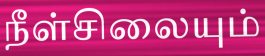
நீள்சிலையும்